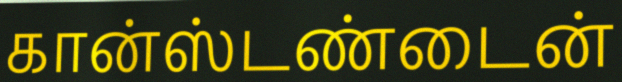
கான்ஸ்டண்டைன்